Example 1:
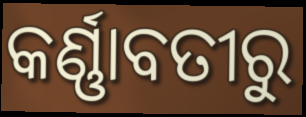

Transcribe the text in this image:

କର୍ଣ୍ଣାବତୀରୁ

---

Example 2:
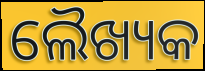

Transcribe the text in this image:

ଲୈଖ୍ୟକ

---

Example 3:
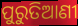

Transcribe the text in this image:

ପୁରୁତିଆଣୀ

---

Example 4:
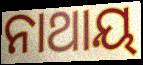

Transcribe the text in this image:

ନାଥାୟ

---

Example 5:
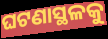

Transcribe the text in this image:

ଘଟଣାସ୍ଥଳକୁ